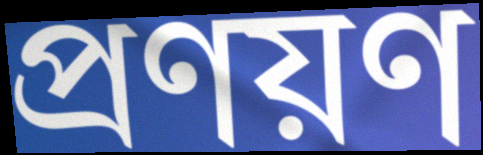
প্ৰণয়ণ